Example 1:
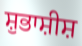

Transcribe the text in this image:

ਸ਼ੁਭਾਸ਼ੀਸ਼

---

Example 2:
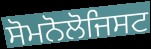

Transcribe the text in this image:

ਸੋਮਨੋਲੋਜਿਸਟ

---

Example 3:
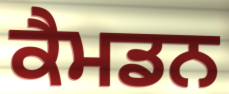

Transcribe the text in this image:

ਕੈਮਡਨ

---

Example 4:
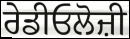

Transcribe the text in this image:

ਰੇਡੀਓਲੋਜ਼ੀ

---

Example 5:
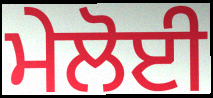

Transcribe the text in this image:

ਮੇਲੋਈ